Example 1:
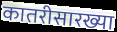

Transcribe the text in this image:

कातरीसारख्या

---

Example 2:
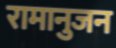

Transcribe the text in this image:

रामानुजन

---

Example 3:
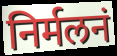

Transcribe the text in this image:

निर्मलनं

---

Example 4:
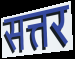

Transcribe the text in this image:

सत्तर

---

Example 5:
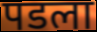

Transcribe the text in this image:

पडला